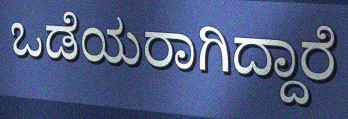
ಒಡೆಯರಾಗಿದ್ದಾರೆ